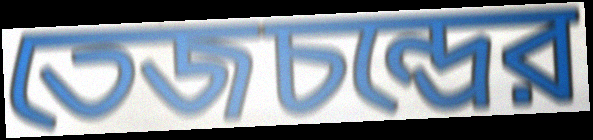
তেজচন্দ্রের